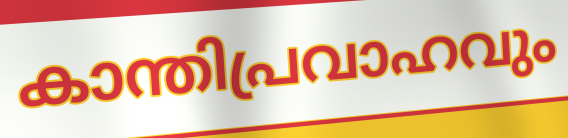
കാന്തിപ്രവാഹവും